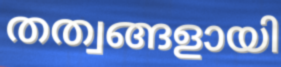
തത്വങ്ങളായി